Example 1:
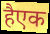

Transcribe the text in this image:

हैएक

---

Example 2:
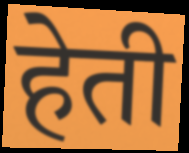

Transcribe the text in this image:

हेती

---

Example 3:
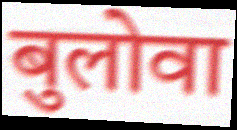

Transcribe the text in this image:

बुलोवा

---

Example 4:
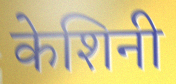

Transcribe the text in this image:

केशिनी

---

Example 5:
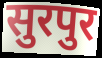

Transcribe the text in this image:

सुरपुर